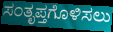
ಸಂತೃಪ್ತಗೊಳಿಸಲು